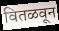
वितळवून